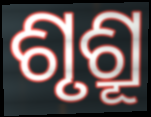
ଶୃଶ୍ରୂ